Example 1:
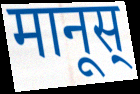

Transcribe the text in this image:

मानूस्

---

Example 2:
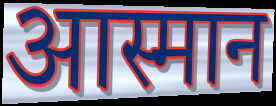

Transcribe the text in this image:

आस्मान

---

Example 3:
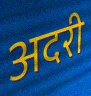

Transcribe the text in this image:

अदरी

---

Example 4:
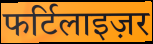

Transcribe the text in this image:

फर्टिलाइज़र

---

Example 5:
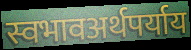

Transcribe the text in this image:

स्वभावअर्थपर्याय